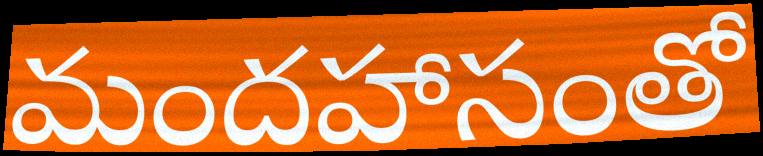
మందహాసంతో